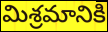
మిశ్రమానికి